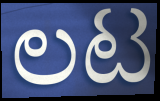
ಲಟ